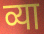
व्या